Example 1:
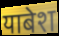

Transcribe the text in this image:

याबेश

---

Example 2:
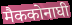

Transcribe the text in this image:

मैककोनाघी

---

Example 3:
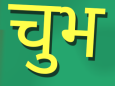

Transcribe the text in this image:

चुभ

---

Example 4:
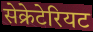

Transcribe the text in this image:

सेक्रेटेरियट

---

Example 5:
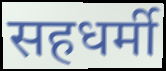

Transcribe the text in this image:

सहधर्मी